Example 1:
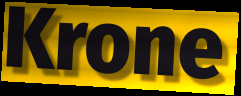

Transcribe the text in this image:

Krone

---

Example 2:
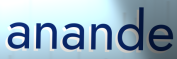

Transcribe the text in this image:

anande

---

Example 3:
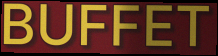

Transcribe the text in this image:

BUFFET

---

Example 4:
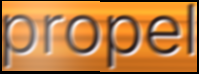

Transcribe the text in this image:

propel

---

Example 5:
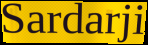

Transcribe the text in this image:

Sardarji